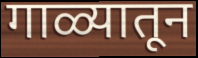
गाळ्यातून